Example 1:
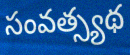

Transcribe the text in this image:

సంవత్స్యథ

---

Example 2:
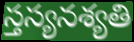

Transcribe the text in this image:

స్తస్యనశ్యతి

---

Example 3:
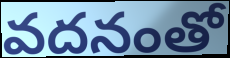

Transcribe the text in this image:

వదనంతో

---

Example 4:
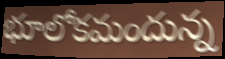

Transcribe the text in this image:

భూలోకమందున్న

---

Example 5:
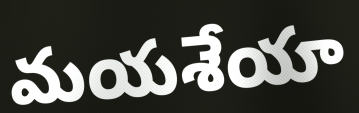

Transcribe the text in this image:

మయశేయా